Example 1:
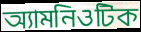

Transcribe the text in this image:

অ্যামনিওটিক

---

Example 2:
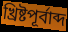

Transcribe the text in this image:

খ্রিষ্টপূর্বাব্দ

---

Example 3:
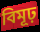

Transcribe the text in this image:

বিমূঢ়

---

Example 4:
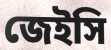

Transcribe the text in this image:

জেইসি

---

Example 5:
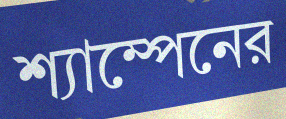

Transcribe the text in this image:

শ্যাম্পেনের